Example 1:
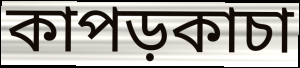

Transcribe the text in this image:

কাপড়কাচা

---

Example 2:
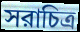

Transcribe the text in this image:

সরাচিত্র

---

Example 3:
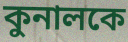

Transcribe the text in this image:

কুনালকে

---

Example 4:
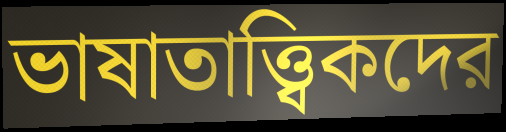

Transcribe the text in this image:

ভাষাতাত্ত্বিকদের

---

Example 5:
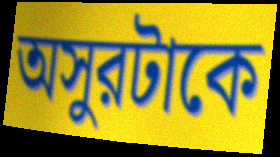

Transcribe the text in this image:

অসুরটাকে